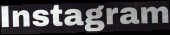
Instagram